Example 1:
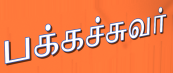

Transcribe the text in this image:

பக்கச்சுவர்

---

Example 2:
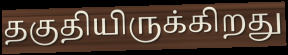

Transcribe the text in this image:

தகுதியிருக்கிறது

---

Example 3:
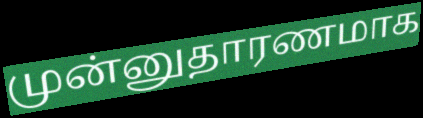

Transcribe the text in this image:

முன்னுதாரணமாக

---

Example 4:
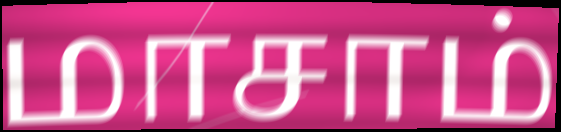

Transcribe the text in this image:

மாசாம்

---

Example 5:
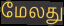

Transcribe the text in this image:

மேலது